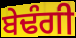
ਬੇਢੰਗੀ